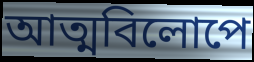
আত্মবিলোপে